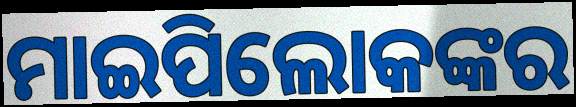
ମାଇପିଲୋକଙ୍କର